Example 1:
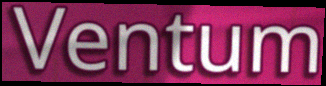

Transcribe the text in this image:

Ventum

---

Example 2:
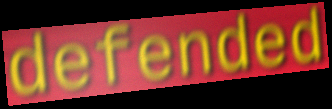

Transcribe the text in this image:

defended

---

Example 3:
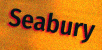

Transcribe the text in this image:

Seabury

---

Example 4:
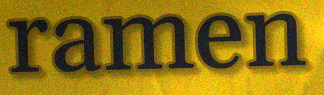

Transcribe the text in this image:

ramen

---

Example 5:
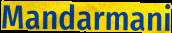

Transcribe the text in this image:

Mandarmani